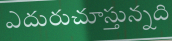
ఎదురుచూస్తున్నది